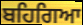
ਬਹਿਗਿਆ